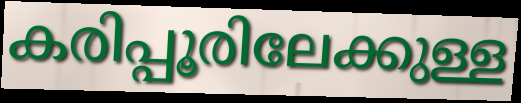
കരിപ്പൂരിലേക്കുള്ള